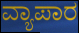
ವ್ಯಾಪಾರ